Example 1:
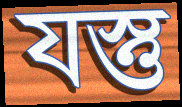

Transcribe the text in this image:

যস্তু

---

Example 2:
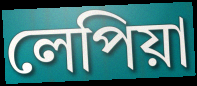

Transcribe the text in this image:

লেপিয়া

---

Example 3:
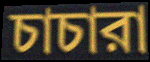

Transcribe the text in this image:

চাচারা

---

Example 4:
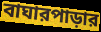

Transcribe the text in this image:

বাঘারপাড়ার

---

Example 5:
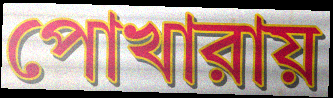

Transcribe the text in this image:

পোখারায়